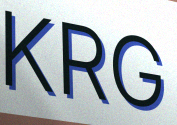
KRG